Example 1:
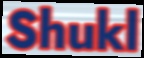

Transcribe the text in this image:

Shukl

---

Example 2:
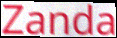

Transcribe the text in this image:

Zanda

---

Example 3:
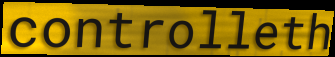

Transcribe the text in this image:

controlleth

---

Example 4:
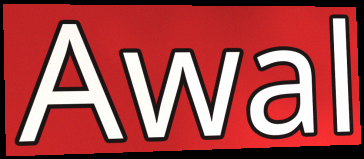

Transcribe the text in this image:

Awal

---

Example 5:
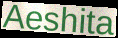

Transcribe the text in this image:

Aeshita